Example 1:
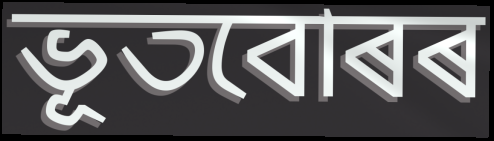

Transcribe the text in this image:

ভূতবোৰৰ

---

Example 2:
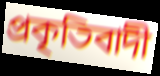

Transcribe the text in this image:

প্ৰকৃতিবাদী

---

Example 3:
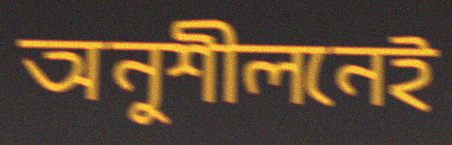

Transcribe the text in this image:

অনুশীলনেই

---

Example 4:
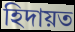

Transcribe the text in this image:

হিদায়ত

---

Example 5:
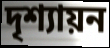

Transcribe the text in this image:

দৃশ্যায়ন